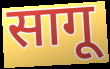
सागू